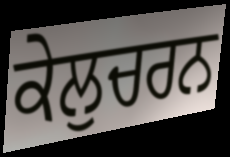
ਕੇਲੁਚਰਨ